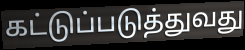
கட்டுப்படுத்துவது